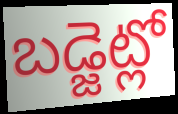
బడ్జెట్లో